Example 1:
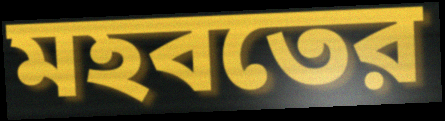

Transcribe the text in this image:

মহবতের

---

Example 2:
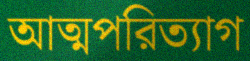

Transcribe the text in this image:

আত্মপরিত্যাগ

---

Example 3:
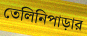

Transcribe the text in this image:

তেলিনিপাড়ার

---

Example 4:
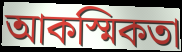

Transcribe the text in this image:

আকস্মিকতা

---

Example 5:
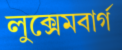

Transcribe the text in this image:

লুক্সেমবার্গ